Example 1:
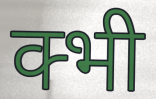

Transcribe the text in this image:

क्भी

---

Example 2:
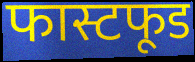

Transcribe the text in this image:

फास्‍टफूड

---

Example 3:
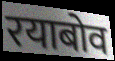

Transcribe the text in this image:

रयाबोव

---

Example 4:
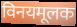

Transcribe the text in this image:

विनयमूलक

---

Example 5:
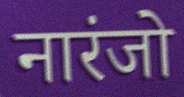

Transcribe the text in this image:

नारंजो